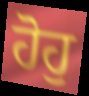
ਹੋਹੁ